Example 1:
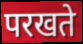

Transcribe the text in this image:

परखते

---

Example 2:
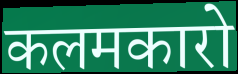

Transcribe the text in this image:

कलमकारो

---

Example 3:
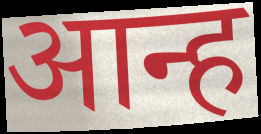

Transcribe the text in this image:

आन्ह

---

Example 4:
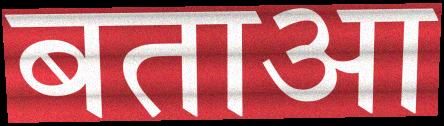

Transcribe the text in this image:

बताआ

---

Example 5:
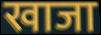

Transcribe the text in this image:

खाजा